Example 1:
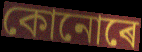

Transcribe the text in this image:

কোনোৰে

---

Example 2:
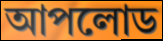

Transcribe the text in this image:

আপলোড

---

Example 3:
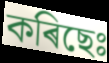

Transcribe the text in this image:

কৰিছেঃ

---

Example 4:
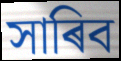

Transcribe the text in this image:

সাৰিব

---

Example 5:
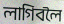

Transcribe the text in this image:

লাগিবলৈ